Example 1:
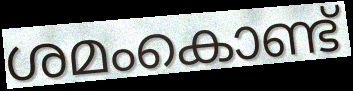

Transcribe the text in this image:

ശമംകൊണ്ട്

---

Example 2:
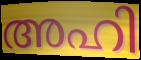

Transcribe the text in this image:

അഹി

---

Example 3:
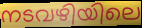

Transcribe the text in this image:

നടവഴിയിലെ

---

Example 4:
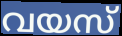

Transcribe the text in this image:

വയസ്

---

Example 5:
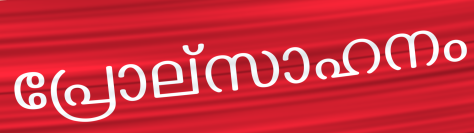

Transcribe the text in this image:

പ്രോല്സാഹനം